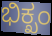
ಭಿಕ್ಖಂ